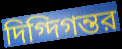
দিগ্দিগন্তর